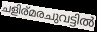
ചളിര്മരചുവട്ടിൽ